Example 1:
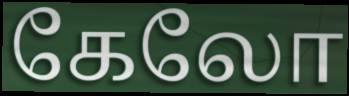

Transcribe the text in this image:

கேலோ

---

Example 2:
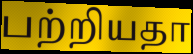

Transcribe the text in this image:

பற்றியதா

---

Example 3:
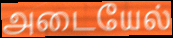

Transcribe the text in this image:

அடையேல்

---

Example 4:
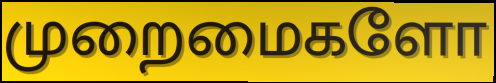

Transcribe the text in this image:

முறைமைகளோ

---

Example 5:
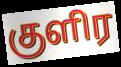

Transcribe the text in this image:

குளிர